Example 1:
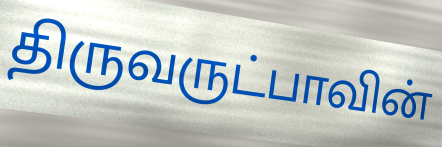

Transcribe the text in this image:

திருவருட்பாவின்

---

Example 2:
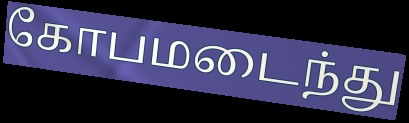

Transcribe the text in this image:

கோபமடைந்து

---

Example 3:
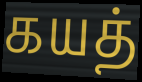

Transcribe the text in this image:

கயத்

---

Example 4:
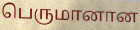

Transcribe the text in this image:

பெருமானான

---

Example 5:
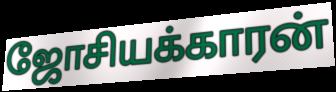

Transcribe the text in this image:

ஜோசியக்காரன்